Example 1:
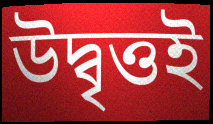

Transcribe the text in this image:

উদ্বৃত্তই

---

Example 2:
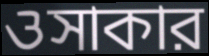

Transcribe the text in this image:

ওসাকার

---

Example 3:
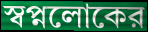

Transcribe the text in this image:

স্বপ্নলোকের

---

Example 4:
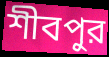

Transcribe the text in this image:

শীবপুর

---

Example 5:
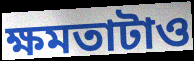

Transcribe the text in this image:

ক্ষমতাটাও